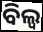
ବିଲ୍ଵ